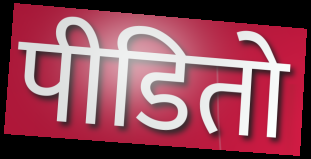
पीडितो